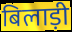
बिलाड़ी